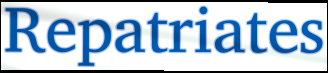
Repatriates